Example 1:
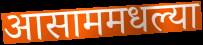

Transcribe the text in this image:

आसाममधल्या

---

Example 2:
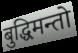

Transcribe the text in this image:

बुद्धिमन्तो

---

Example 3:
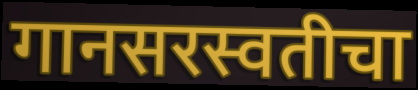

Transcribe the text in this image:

गानसरस्वतीचा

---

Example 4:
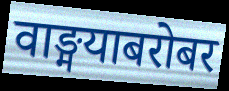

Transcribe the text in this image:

वाङ्मयाबरोबर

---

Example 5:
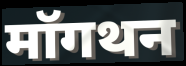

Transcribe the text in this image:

मॉगथन